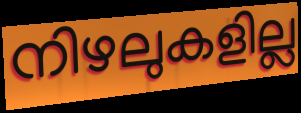
നിഴലുകളില്ല